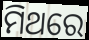
ମିଥରେ